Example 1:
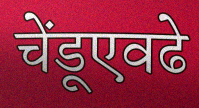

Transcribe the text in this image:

चेंडूएवढे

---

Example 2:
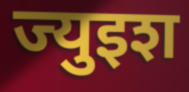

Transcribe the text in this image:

ज्युइश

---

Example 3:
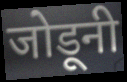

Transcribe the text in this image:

जोडूनी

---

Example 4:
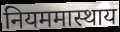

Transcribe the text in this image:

नियममास्थाय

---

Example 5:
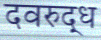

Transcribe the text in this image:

दवरुद्ध